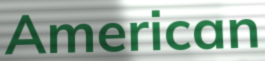
American